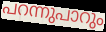
പറന്നുപാറും